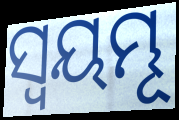
ସ୍ଵୟମ୍ଭୂ